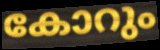
കോറും